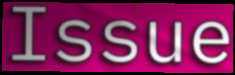
Issue